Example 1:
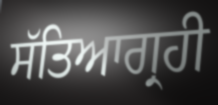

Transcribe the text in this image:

ਸੱਤਿਆਗ੍ਰਹੀ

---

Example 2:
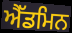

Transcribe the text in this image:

ਐੱਡਮਿਨ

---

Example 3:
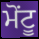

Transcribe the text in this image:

ਮੋਂਟੂ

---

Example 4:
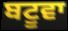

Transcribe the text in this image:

ਬਟੂਵਾ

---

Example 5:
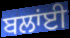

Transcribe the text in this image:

ਬਲਾਂਈ